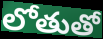
లోతుతో